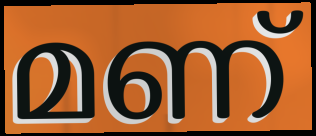
മണ്